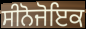
ਸੀਨੋਜੋਇਕ